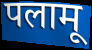
पलामू